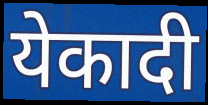
येकादी